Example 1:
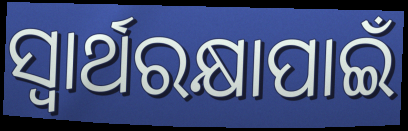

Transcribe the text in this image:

ସ୍ବାର୍ଥରକ୍ଷାପାଇଁ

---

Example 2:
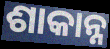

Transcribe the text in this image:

ଶାକାନ୍ନ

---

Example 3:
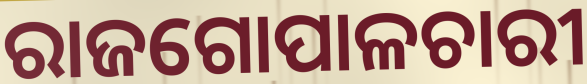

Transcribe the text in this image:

ରାଜଗୋପାଳଚାରୀ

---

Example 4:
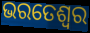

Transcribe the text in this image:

ଭରତେଶ୍ଵର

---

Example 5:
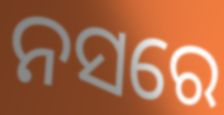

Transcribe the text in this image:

ନସରେ